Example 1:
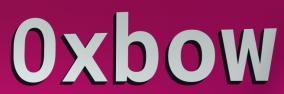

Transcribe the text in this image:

Oxbow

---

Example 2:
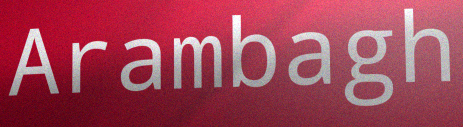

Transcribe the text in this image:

Arambagh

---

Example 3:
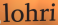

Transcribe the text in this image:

lohri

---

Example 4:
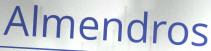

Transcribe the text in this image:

Almendros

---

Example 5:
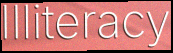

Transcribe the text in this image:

Illiteracy